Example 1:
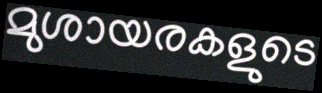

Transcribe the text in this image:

മുശായരകളുടെ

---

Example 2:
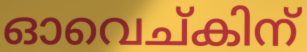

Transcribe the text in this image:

ഓവെച്കിന്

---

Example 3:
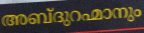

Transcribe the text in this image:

അബ്ദുറഹ്മാനും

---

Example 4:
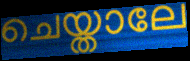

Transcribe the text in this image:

ചെയ്താലേ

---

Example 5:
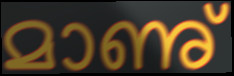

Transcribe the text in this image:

മാണു്